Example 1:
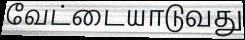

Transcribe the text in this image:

வேட்டையாடுவது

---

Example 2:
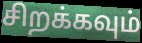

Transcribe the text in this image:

சிறக்கவும்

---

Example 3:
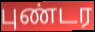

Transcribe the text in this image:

புண்டர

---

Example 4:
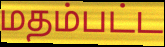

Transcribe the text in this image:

மதம்பட்ட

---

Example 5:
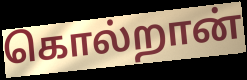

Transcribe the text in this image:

கொல்றான்